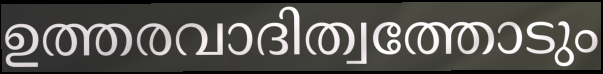
ഉത്തരവാദിത്വത്തോടും